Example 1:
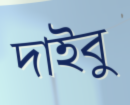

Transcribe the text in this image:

দাইবু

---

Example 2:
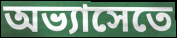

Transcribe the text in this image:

অভ্যাসেতে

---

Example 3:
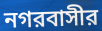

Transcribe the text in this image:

নগরবাসীর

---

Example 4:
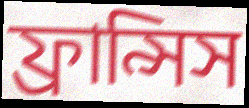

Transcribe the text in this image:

ফ্রান্সিস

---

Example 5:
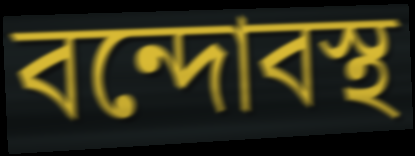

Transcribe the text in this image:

বন্দোবস্থ